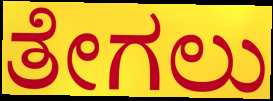
ತೇಗಲು